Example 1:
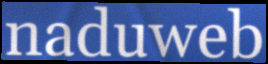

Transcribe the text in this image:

naduweb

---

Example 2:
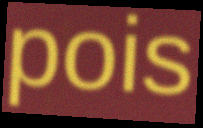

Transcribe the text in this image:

pois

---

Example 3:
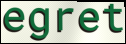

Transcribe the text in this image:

egret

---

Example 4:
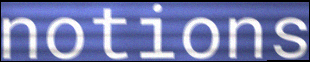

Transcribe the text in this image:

notions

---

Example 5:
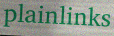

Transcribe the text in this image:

plainlinks